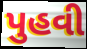
પુહવી